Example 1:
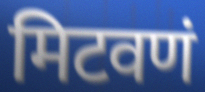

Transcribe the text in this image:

मिटवणं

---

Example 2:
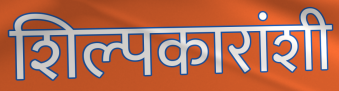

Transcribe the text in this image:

शिल्पकारांशी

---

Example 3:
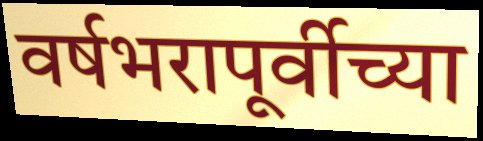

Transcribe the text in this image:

वर्षभरापूर्वीच्या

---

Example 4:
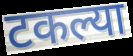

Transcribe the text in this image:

टकल्या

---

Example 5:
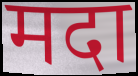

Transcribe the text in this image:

मदा